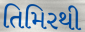
તિમિરથી